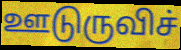
ஊடுருவிச்